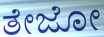
ತೇಜೋ